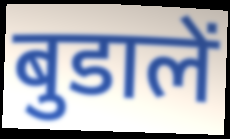
बुडालें